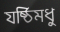
যষ্ঠিমধু